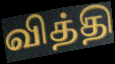
வித்தி